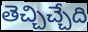
తెచ్చిచ్చేది